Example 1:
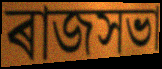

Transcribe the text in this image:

ৰাজসভা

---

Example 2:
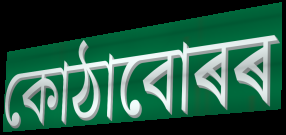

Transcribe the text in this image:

কোঠাবোৰৰ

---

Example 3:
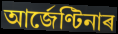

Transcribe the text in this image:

আৰ্জেণ্টিনাৰ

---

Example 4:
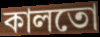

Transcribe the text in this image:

কালতো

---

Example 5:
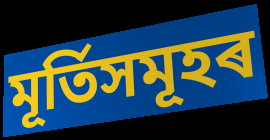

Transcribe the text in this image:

মূৰ্তিসমূহৰ